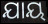
ଯାୟ